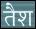
तैश